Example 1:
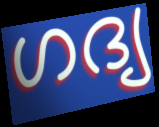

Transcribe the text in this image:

ഗദ്യ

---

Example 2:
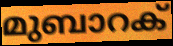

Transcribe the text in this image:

മുബാറക്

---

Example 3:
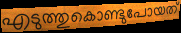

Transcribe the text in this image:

എടുത്തുകൊണ്ടുപോയത്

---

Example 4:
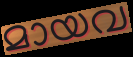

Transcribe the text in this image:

മായവ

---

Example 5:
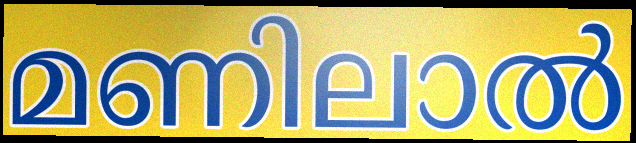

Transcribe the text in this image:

മണിലാൽ